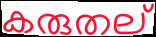
കരുതല്